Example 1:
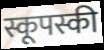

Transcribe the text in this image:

स्कूपस्की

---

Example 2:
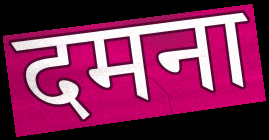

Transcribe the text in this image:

दमना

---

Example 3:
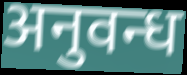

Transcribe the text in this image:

अनुवन्ध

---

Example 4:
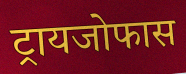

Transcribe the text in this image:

ट्रायजोफास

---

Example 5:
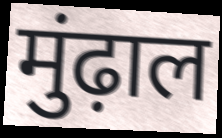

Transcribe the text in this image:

मुंढ़ाल